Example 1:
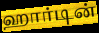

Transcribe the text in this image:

ஹார்டின்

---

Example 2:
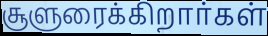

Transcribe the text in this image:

சூளுரைக்கிறார்கள்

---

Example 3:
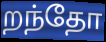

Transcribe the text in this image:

றந்தோ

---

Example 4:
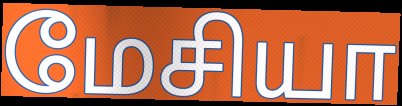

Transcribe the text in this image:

மேசியா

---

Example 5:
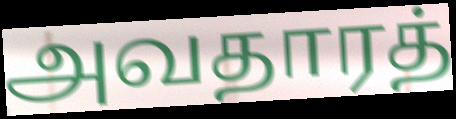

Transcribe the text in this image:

அவதாரத்